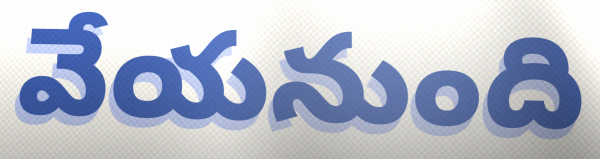
వేయనుంది